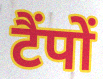
टैंपों